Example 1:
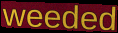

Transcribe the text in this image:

weeded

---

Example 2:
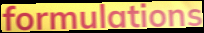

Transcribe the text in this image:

formulations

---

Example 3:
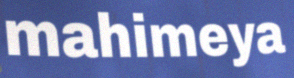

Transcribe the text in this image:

mahimeya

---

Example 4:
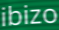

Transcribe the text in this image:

ibizo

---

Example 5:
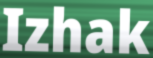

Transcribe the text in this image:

Izhak